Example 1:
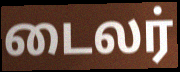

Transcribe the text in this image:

டைலர்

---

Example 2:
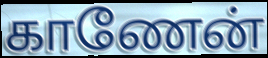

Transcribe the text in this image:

காணேன்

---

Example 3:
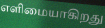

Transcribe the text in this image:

எளிமையாகிறது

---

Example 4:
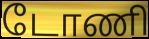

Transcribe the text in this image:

டோணி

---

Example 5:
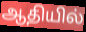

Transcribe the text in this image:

ஆதியில்